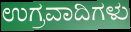
ಉಗ್ರವಾದಿಗಳು